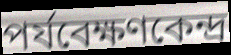
পর্যবেক্ষণকেন্দ্র